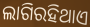
ଲାଗିରହିଥାଏ